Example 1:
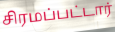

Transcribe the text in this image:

சிரமப்பட்டார்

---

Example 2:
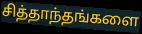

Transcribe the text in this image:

சித்தாந்தங்களை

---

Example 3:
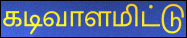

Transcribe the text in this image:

கடிவாளமிட்டு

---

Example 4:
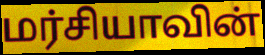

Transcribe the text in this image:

மர்சியாவின்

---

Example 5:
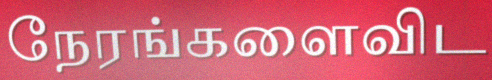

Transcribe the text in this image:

நேரங்களைவிட